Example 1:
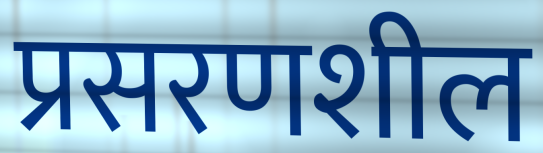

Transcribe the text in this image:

प्रसरणशील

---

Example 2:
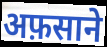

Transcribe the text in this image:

अफ़साने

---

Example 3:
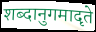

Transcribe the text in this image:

शब्दानुगमादृते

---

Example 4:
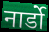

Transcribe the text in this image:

नार्डो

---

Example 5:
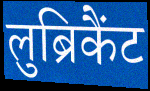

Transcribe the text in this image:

लुब्रिकैंट